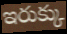
ఇరుక్కు